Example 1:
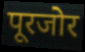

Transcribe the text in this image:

पूरजोर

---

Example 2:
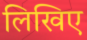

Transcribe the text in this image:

लिखिए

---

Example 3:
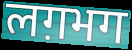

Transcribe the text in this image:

लग़भग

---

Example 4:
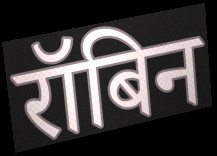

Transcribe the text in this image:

रॉबिन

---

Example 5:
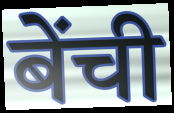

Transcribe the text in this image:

बेंची